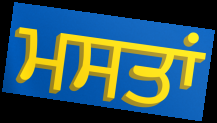
ਮਸਤਾਂ